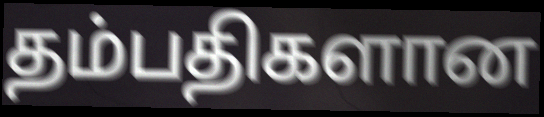
தம்பதிகளான